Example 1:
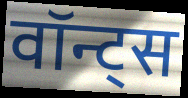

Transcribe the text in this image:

वॉन्ट्स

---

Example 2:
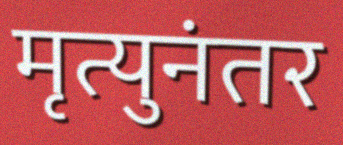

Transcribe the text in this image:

मृत्युनंतर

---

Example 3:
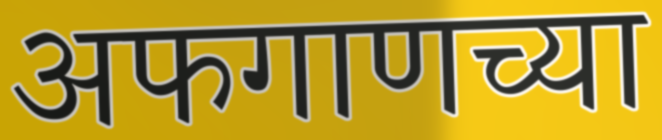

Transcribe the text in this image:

अफगाणच्या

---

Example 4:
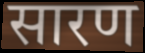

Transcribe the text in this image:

सारण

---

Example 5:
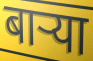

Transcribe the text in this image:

बाऱ्या